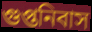
গুপ্তনিবাস